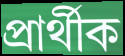
প্ৰাৰ্থীক